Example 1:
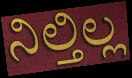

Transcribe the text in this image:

ನಿಲ್ತಿಲ್ಲ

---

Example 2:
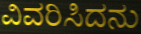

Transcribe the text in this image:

ವಿವರಿಸಿದನು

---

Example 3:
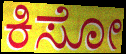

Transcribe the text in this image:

ಕಿಸೋ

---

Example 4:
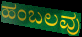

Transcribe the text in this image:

ಹಂಬಲವು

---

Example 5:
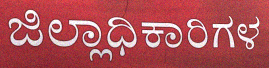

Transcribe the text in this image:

ಜಿಲ್ಲಾಧಿಕಾರಿಗಳ